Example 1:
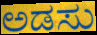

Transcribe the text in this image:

ಅಡಸು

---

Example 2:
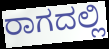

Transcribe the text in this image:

ರಾಗದಲ್ಲಿ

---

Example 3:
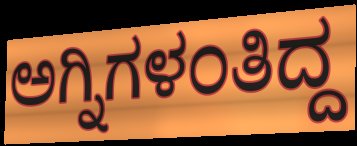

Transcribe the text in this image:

ಅಗ್ನಿಗಳಂತಿದ್ದ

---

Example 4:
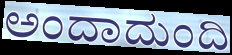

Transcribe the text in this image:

ಅಂದಾದುಂದಿ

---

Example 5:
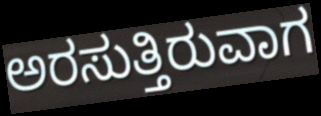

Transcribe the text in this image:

ಅರಸುತ್ತಿರುವಾಗ